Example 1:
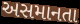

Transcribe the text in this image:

અસમાનતા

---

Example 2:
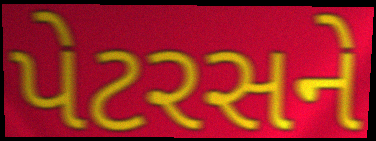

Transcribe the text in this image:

પેટરસને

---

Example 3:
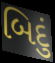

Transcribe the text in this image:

બિદું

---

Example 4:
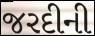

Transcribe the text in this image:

જરદીની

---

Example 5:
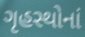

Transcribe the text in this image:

ગૃહસ્થોનાં